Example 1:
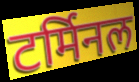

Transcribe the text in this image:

टर्मिनल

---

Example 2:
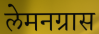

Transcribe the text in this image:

लेमनग्रास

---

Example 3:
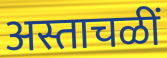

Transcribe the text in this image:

अस्ताचळीं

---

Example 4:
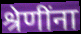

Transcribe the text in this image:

श्रेणींना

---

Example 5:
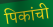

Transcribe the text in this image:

पिकांची